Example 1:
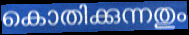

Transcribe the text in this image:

കൊതിക്കുന്നതും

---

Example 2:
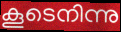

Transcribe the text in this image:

കൂടെനിന്നു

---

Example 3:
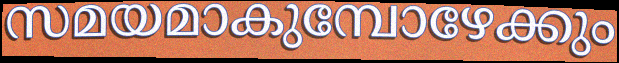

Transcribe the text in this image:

സമയമാകുമ്പോഴേക്കും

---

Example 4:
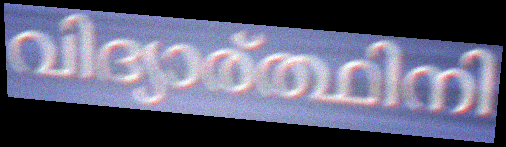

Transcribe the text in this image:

വിദ്യാര്ത്ഥിനി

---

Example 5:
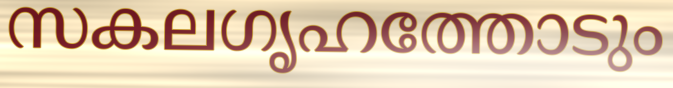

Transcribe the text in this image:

സകലഗൃഹത്തോടും